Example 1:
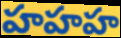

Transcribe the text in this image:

హహహ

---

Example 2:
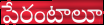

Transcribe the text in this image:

పేరంటాలూ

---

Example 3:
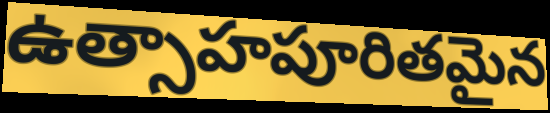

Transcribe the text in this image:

ఉత్సాహపూరితమైన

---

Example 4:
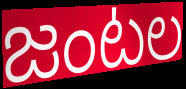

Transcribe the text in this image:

జంటల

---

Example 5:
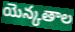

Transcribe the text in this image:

యెన్కతాల